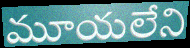
మూయలేని